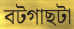
বটগাছটা